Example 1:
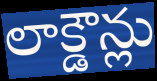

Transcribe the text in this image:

లాక్డౌన్లు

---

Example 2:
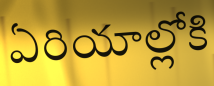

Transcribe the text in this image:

ఏరియాల్లోకి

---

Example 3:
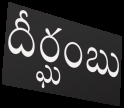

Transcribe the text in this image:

దీర్ఘంబు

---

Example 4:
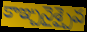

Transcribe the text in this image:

కాఞ్చనైశ్చైవ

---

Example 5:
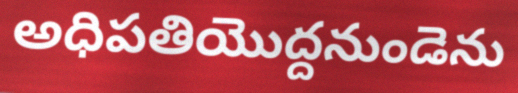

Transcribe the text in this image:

అధిపతియొద్దనుండెను